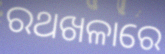
ରଥଖଳାରେ